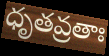
ధృతవ్రతాః